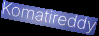
Komatireddy